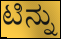
ಟಿನ್ನು